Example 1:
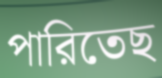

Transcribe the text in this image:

পারিতেছ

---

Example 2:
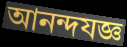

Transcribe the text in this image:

আনন্দযজ্ঞ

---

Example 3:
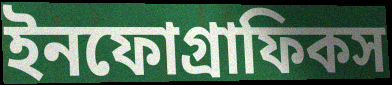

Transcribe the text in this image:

ইনফোগ্রাফিকস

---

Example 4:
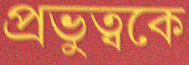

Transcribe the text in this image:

প্রভুত্বকে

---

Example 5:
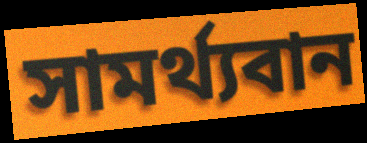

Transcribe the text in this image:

সামর্থ্যবান